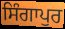
ਸਿੰਗਾਪੁਰ